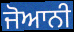
ਜੋਆਨੀ